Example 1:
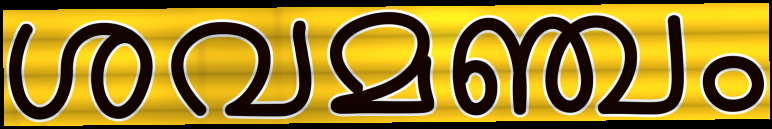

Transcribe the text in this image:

ശവമഞ്ചം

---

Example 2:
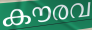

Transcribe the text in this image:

കൗരവ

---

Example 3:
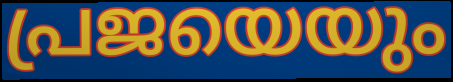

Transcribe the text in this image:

പ്രജയെയും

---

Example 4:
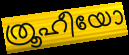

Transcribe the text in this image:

ത്രൂഹീയോ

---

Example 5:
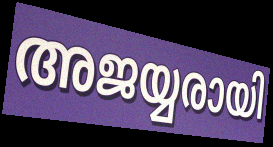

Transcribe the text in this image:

അജയ്യരായി